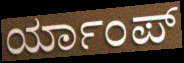
ರ್ಯಾಂಪ್